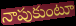
నాపుకుంటూ